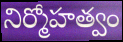
నిర్మోహత్వం